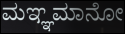
ಮಞ್ಞಮಾನೋ